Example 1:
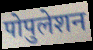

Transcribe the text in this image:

पोपुलेशन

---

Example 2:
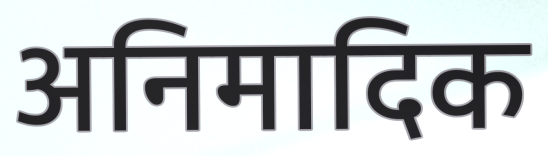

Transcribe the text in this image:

अनिमादिक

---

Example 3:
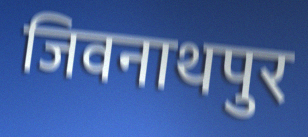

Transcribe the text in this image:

जिवनाथपुर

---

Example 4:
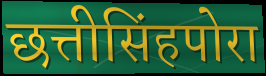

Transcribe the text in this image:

छत्तीसिंहपोरा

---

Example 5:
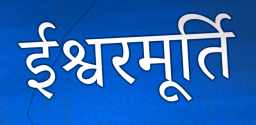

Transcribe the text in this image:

ईश्वरमूर्ति